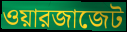
ওয়ারজাজেট